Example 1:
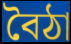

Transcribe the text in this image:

বৈঠা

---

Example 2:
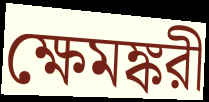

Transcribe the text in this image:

ক্ষেমঙ্করী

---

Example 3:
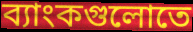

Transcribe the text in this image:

ব্যাংকগুলোতে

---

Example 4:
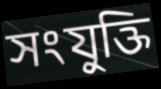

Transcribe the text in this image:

সংযুক্তি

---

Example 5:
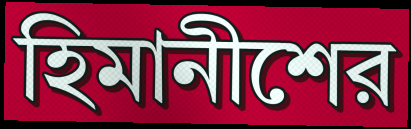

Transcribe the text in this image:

হিমানীশের